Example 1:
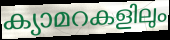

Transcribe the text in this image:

ക്യാമറകളിലും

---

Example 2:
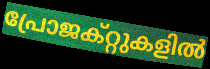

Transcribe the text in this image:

പ്രോജക്റ്റുകളിൽ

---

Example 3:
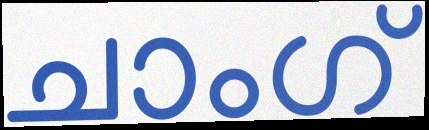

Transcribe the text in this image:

ചാംഗ്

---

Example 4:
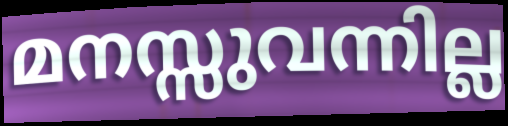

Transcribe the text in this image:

മനസ്സുവന്നില്ല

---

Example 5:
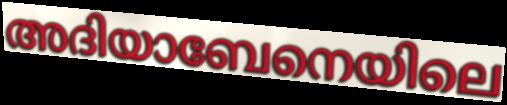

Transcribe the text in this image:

അദിയാബേനെയിലെ